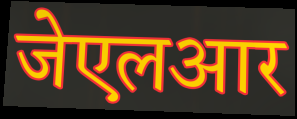
जेएलआर